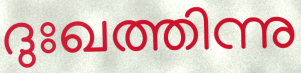
ദുഃഖത്തിന്നു